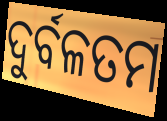
ଦୁର୍ବଳତମ